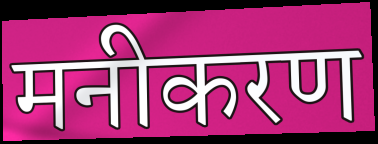
मनीकरण